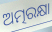
ଅତ୍ମରକ୍ଷା